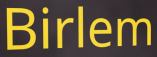
Birlem